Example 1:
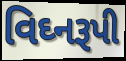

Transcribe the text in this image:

વિઘ્નરૂપી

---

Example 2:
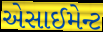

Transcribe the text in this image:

એસાઈમેન્ટ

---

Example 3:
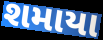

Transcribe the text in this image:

શમાયા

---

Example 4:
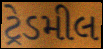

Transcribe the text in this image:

ટ્રેડમીલ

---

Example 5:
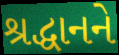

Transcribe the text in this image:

શ્રદ્ધાનને